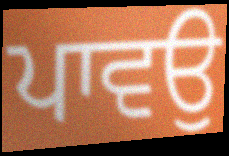
ਪਾਵਉ